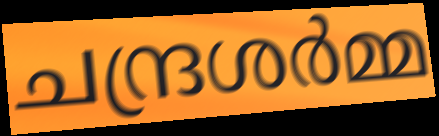
ചന്ദ്രശർമ്മ